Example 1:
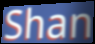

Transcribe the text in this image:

Shan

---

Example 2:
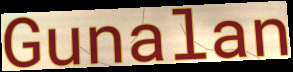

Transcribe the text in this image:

Gunalan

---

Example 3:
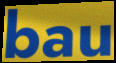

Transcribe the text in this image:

bau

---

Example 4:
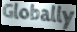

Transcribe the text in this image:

Globally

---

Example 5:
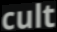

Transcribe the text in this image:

cult